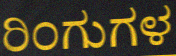
ರಿಂಗುಗಳ